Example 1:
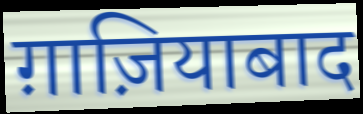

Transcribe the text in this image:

ग़ाज़ियाबाद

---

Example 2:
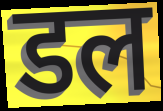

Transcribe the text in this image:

डल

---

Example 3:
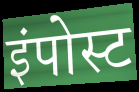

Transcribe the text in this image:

इंपोस्ट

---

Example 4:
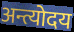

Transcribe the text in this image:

अन्त्योदय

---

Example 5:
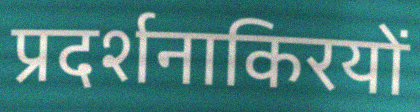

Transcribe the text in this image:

प्रदर्शनाकिरयों